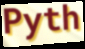
Pyth